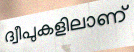
ദ്വീപുകളിലാണ്